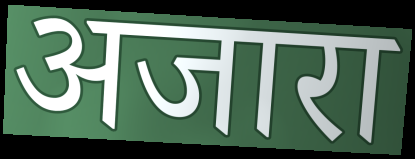
अजारा